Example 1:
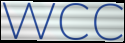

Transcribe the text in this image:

WCC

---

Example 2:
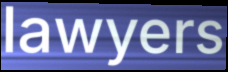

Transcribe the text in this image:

lawyers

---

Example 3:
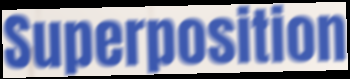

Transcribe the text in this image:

Superposition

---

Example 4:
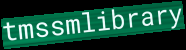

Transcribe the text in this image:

tmssmlibrary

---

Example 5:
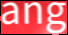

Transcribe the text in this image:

ang